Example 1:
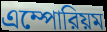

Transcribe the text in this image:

এম্পোরিয়ম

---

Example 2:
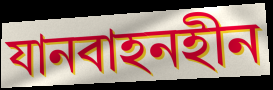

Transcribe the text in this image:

যানবাহনহীন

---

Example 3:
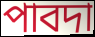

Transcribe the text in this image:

পাবদা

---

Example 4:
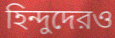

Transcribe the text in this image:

হিন্দুদেরও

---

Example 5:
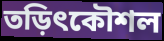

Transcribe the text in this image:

তড়িৎকৌশল